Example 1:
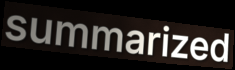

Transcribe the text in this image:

summarized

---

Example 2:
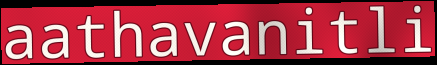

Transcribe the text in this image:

aathavanitli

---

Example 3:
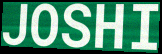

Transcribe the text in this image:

JOSHI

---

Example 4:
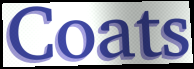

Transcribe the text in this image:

Coats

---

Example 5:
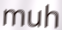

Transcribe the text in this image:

muh